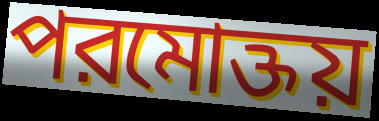
পরমোক্তয়